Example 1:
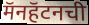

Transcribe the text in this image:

मॅनहॅटनची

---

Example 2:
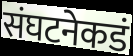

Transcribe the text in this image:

संघटनेकडं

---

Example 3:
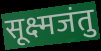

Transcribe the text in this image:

सूक्ष्मजंतु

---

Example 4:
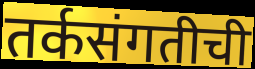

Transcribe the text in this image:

तर्कसंगतीची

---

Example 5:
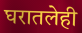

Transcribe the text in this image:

घरातलेही